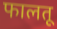
फालतू